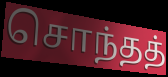
சொந்தத்